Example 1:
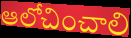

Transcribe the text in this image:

ఆలోచించాలి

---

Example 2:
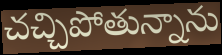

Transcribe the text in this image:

చచ్చిపోతున్నాను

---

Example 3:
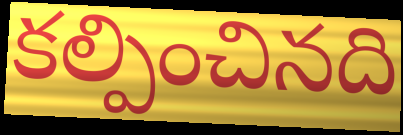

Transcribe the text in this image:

కల్పించినది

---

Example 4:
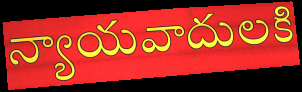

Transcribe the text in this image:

న్యాయవాదులకి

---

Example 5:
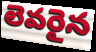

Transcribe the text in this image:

లెవరైన